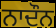
ਨਾਦੌਨ